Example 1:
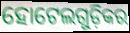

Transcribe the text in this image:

ହୋଟେଲଗୁଡ଼ିକର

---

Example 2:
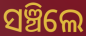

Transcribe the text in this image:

ସଞ୍ଚିଲେ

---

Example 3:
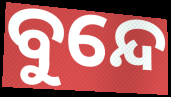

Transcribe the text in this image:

ବୁନ୍ଦେ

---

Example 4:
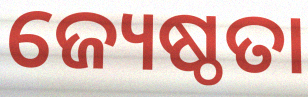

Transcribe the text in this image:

ଜ୍ୟେଷ୍ଠତା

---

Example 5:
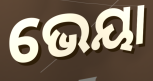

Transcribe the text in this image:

ଭେୟା